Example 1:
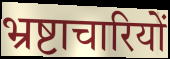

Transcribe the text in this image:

भ्रष्टाचारियों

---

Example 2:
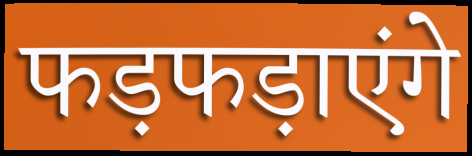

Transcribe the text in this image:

फड़फड़ाएंगे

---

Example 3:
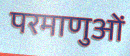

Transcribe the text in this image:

परमाणुओं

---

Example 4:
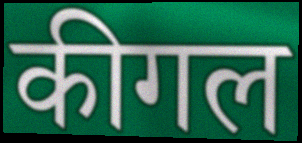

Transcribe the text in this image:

कीगल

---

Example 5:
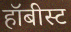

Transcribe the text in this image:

हॉबीस्ट